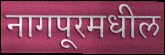
नागपूरमधील